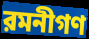
রমনীগণ